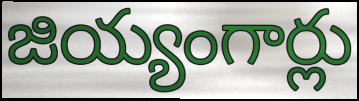
జియ్యంగార్లు